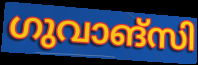
ഗുവാങ്സി